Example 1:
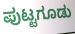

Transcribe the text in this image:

ಪುಟ್ಟಗೂಡು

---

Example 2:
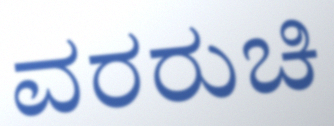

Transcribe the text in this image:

ವರರುಚಿ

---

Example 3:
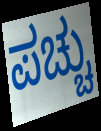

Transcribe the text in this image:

ಪಚ್ಚು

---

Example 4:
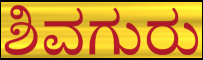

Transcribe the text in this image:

ಶಿವಗುರು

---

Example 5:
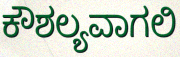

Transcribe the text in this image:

ಕೌಶಲ್ಯವಾಗಲಿ